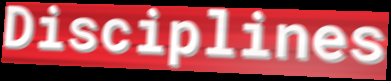
Disciplines